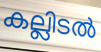
കല്ലിടൽ